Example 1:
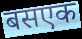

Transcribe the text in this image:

बसएक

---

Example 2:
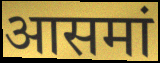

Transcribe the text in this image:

आसमां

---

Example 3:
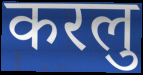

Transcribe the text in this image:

करलु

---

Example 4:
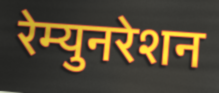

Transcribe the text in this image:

रेम्युनरेशन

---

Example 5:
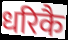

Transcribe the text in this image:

धरिकै